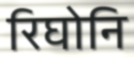
रिघोनि